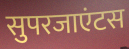
सुपरजाएंटस